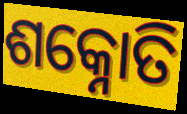
ଶକ୍ନୋତି